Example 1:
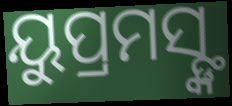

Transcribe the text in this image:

ୟୁପ୍ରମସ୍ଙ୍କ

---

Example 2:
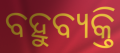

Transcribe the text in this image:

ବହୁବ୍ୟକ୍ତି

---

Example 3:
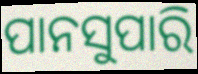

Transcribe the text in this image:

ପାନସୁପାରି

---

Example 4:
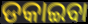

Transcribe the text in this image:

ଡକାଇବା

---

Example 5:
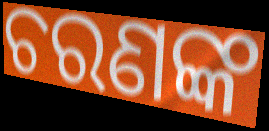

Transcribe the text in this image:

ଚରଣଙ୍କ